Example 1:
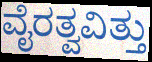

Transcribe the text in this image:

ವೈರತ್ವವಿತ್ತು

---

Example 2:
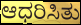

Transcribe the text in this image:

ಆಧರಿಸಿತು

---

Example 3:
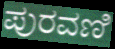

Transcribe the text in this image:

ಪುರವಣಿ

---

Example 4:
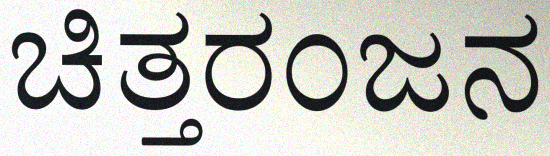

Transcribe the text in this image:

ಚಿತ್ತರಂಜನ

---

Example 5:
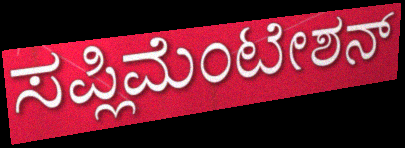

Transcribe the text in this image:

ಸಪ್ಲಿಮೆಂಟೇಶನ್